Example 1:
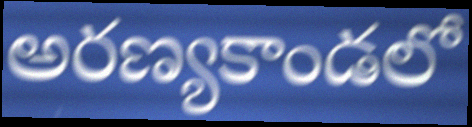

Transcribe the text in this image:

అరణ్యకాండలో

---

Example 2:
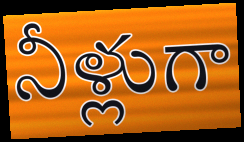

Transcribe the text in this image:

నీళ్లుగా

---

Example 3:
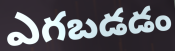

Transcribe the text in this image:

ఎగబడడం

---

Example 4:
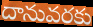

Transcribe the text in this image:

దానువరకు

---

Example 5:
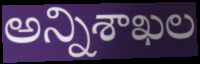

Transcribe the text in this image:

అన్నిశాఖల